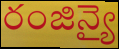
రంజిన్యై